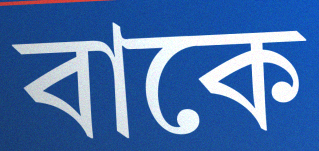
বাকে